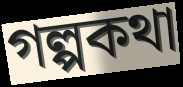
গল্পকথা